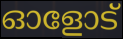
ഓളോട്